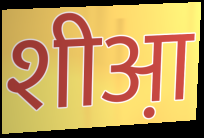
शीआ़